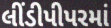
લીંડીપીપરમાં